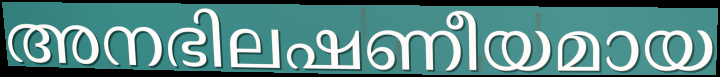
അനഭിലഷണീയമായ